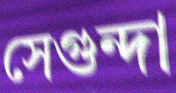
সেগুন্দা